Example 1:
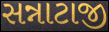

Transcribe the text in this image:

સન્નાટાજી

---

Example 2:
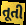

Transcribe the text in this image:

તૂતી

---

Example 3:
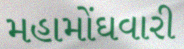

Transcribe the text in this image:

મહામોંઘવારી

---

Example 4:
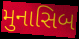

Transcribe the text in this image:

મુનાસિબ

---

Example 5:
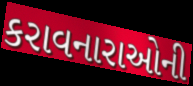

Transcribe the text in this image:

કરાવનારાઓની